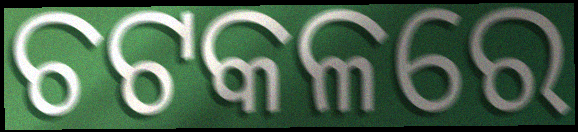
ଚଟକଳରେ